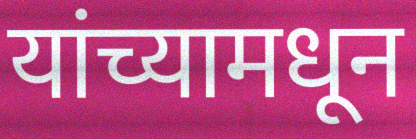
यांच्यामधून